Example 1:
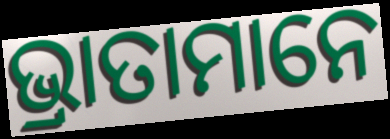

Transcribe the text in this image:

ଭ୍ରାତାମାନେ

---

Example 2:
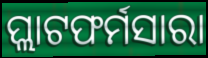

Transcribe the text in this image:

ପ୍ଲାଟଫର୍ମସାରା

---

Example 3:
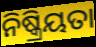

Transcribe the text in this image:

ନିଷ୍କ୍ରିୟତା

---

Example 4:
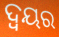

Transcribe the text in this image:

ଦ୍ବୟର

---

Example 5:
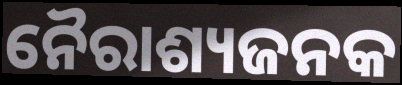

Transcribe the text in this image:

ନୈରାଶ୍ୟଜନକ